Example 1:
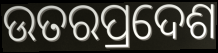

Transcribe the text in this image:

ଉତରପ୍ରଦେଶ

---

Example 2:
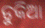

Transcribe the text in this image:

ଡୁକିଆ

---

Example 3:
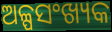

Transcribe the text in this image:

ଅଳ୍ପସଂଖ୍ୟକ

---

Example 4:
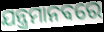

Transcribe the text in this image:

ଯନ୍ତ୍ରମାନବରେ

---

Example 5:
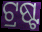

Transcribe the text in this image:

ଟ୍ରଷ୍ଟ